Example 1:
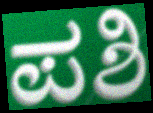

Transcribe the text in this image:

ಪಶಿ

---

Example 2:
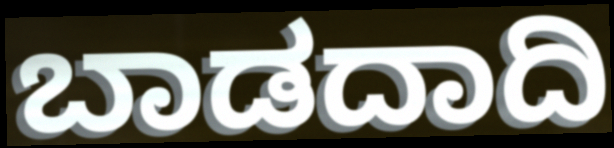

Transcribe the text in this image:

ಬಾಡದಾದಿ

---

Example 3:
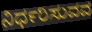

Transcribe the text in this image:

ನಿರ್ಧರಿಸುವವ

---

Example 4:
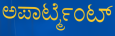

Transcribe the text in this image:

ಅಪಾರ್ಟ್ಮೆಂಟ್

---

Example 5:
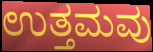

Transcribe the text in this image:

ಉತ್ತಮವು